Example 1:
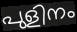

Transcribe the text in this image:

പുളിനം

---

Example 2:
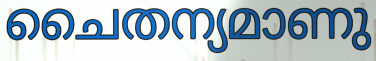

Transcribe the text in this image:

ചൈതന്യമാണു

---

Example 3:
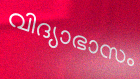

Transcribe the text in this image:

വിദ്യാഭാസം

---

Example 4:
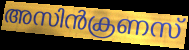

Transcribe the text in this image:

അസിൻക്രണസ്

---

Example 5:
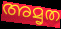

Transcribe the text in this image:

അമൃത